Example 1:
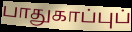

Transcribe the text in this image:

பாதுகாப்புப்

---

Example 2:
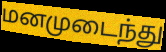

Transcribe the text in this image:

மனமுடைந்து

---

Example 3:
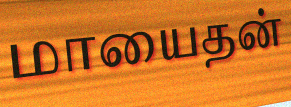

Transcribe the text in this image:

மாயைதன்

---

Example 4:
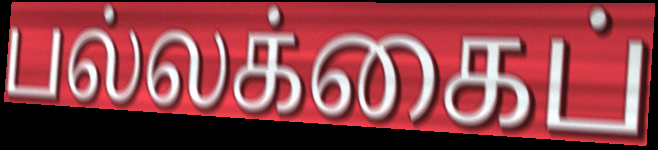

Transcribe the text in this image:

பல்லக்கைப்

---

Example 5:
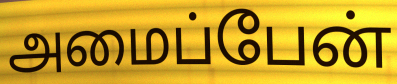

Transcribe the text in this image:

அமைப்பேன்